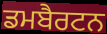
ਡਮਬੈਰਟਨ